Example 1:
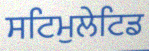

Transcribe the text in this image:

ਸਟਿਮੁਲੇਟਿਡ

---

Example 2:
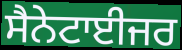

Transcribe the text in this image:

ਸੈਨੇਟਾਈਜਰ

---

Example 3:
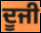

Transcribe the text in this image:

ਦੂਜੀ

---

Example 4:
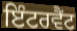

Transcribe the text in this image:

ਇੰਟਰਵੈਂਟ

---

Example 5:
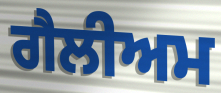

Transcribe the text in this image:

ਗੈਲੀਅਮ